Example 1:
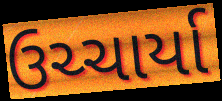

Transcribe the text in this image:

ઉચ્ચાર્યા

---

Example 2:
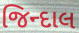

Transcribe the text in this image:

જિન્દાલ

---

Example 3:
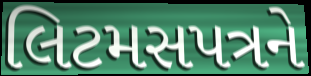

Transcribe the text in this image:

લિટમસપત્રને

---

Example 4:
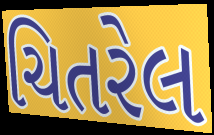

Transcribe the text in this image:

ચિતરેલ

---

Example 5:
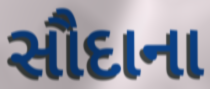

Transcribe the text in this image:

સૌદાના